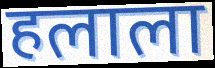
हलाला